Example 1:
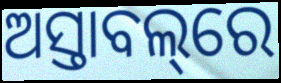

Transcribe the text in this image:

ଅସ୍ତାବଲ୍‌ରେ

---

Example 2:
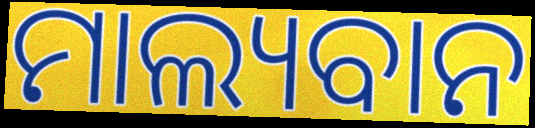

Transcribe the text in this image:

ମାଲ୍ୟବାନ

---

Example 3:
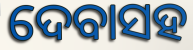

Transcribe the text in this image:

ଦେବାସହ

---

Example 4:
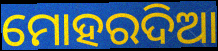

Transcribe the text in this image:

ମୋହରଦିଆ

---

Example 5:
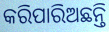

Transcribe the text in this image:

କରିପାରିଅଛନ୍ତି